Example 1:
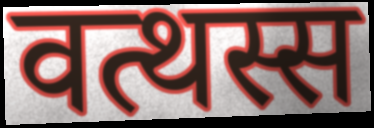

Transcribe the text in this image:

वत्थस्स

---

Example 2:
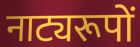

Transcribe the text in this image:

नाट्यरूपों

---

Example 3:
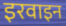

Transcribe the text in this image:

इरवाइन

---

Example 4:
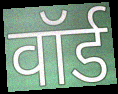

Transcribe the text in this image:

वॉर्ड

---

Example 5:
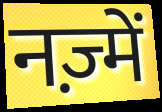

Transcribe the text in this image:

नज़्में